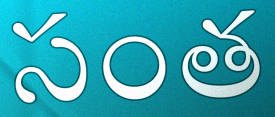
సంత